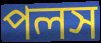
পলস